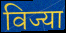
विज्या